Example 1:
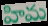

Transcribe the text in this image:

హిమ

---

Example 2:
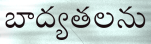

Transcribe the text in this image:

బాద్యతలను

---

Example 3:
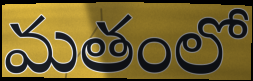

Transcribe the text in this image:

మతంలో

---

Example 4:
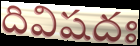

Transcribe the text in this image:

దివిషదః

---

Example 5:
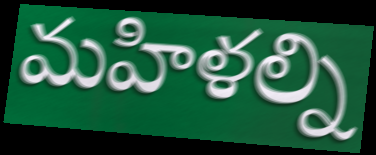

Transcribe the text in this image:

మహిళల్ని